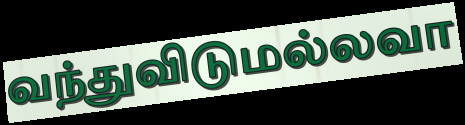
வந்துவிடுமல்லவா